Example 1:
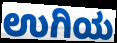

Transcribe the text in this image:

ಉಗಿಯ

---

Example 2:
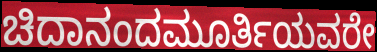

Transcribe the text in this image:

ಚಿದಾನಂದಮೂರ್ತಿಯವರೇ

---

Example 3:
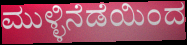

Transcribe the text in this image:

ಮುಳ್ಳಿನೆಡೆಯಿಂದ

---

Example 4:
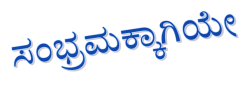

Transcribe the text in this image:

ಸಂಭ್ರಮಕ್ಕಾಗಿಯೇ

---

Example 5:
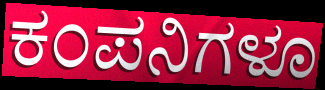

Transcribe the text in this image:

ಕಂಪನಿಗಳೂ